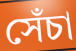
সেঁচা